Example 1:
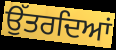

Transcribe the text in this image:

ਉੱਤਰਦਿਆਂ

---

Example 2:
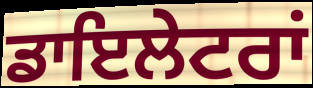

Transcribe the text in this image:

ਡਾਇਲੇਟਰਾਂ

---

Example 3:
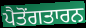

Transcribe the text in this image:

ਪੈਤੋਂਗਤਾਰਨ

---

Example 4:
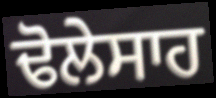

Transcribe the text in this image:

ਢੋਲੇਸਾਹ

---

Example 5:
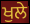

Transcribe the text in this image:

ਖੁਲੇ